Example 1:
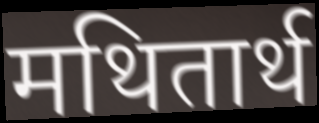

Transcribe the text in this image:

मथितार्थ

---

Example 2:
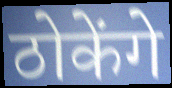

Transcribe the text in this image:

ठोकेंगे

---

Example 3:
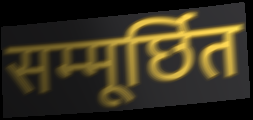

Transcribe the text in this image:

सम्मूर्छित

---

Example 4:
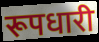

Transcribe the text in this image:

रूपधारी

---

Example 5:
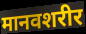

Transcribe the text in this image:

मानवशरीर